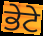
ਭੇਟੇ